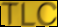
TLC